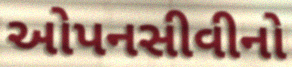
ઓપનસીવીનો